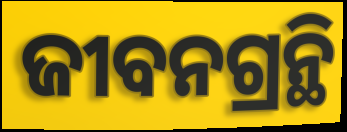
ଜୀବନଗ୍ରନ୍ଥି